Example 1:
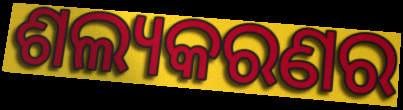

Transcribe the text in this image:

ଶଲ୍ୟକରଣର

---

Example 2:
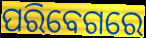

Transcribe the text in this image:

ପରିବେଗରେ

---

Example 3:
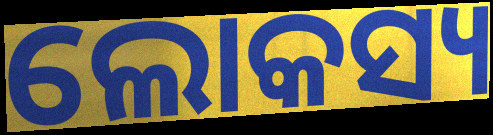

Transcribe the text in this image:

ଲୋକସ୍ୟ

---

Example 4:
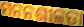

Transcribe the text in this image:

ମନନଶୀଳତା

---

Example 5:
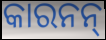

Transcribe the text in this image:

କାରନନ୍